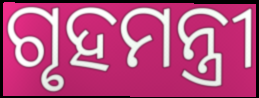
ଗୃହମନ୍ତ୍ରୀ